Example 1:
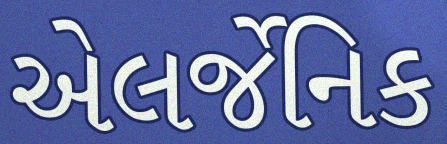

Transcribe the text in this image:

એલર્જેનિક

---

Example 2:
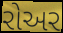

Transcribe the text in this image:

રોઅર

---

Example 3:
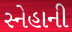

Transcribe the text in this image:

સ્નેહાની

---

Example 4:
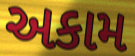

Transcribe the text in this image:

અકામ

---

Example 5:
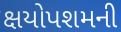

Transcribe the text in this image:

ક્ષયોપશમની